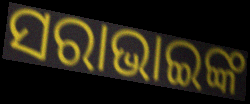
ସରାଭାଇଙ୍କ